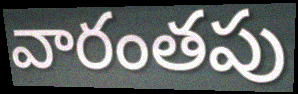
వారంతపు